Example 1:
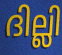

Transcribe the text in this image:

ദില്ലി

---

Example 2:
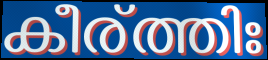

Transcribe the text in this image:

കീര്ത്തിഃ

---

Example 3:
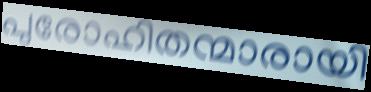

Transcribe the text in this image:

പുരോഹിതന്മാരായി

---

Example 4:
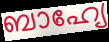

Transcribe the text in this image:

ബാഹ്യേ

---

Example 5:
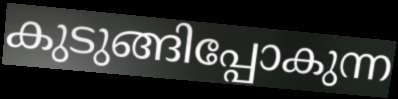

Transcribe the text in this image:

കുടുങ്ങിപ്പോകുന്ന